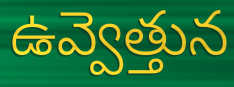
ఉవ్వెత్తున